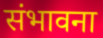
संभावना